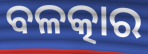
ବଳତ୍କାର